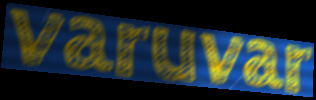
varuvar